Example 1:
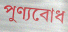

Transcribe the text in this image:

পুণ্যবোধ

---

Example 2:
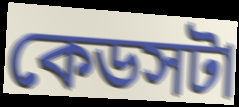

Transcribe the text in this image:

কেডসটা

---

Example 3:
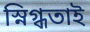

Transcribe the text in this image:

স্নিগ্ধতাই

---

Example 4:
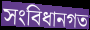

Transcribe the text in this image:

সংবিধানগত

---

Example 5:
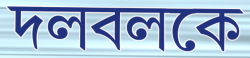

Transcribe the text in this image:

দলবলকে